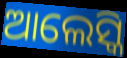
ଆଲେସ୍କି